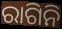
ରାଗିନି